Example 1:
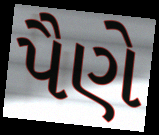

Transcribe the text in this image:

પૈણે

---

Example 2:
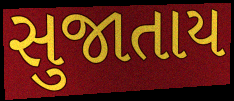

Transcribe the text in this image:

સુજાતાય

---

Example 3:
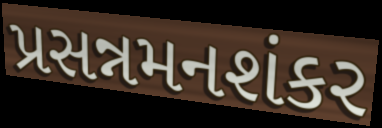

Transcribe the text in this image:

પ્રસન્નમનશંકર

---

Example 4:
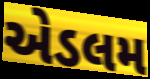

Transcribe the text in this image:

એડલમ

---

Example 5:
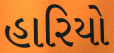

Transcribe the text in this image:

હારિયો